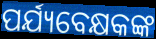
ପର୍ଯ୍ୟବେକ୍ଷକଙ୍କ